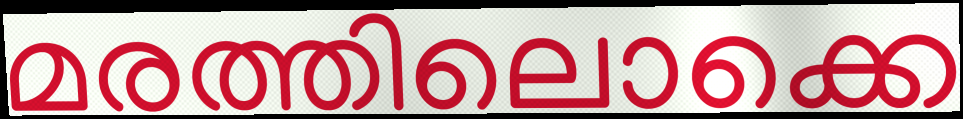
മരത്തിലൊക്കെ